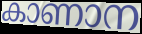
കാണാന